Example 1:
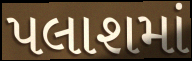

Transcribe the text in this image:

પલાશમાં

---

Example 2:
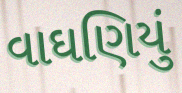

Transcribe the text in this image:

વાઘણિયું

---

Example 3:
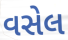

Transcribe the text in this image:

વસેલ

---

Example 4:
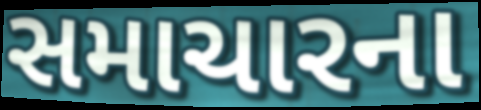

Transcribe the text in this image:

સમાચારના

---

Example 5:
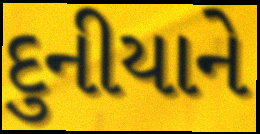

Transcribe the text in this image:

દુનીયાને